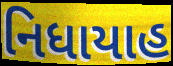
નિધાયાહ